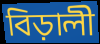
বিড়ালী